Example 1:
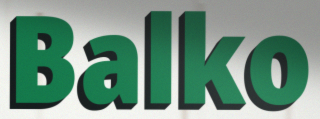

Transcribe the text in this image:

Balko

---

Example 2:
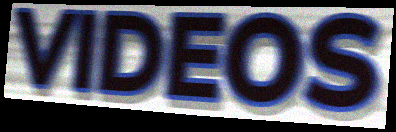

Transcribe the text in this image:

VIDEOS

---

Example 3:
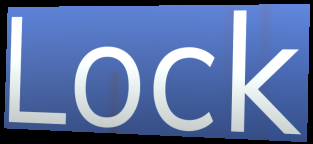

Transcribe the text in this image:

Lock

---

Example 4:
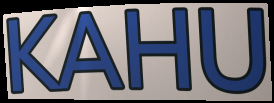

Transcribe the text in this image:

KAHU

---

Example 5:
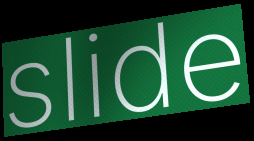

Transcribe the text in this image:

slide